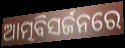
ଆତ୍ମବିସର୍ଜନରେ